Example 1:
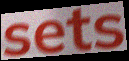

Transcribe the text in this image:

sets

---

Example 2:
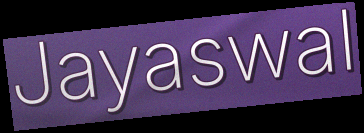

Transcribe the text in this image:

Jayaswal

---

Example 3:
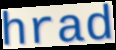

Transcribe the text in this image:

hrad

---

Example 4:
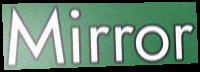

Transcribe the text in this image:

Mirror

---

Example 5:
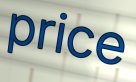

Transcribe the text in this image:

price